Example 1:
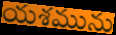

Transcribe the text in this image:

యశమును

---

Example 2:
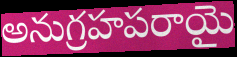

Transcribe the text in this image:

అనుగ్రహపరాయై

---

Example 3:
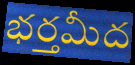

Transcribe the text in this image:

భర్తమీద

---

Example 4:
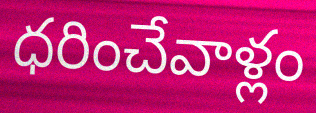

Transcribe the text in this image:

ధరించేవాళ్లం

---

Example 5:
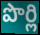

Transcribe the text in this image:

పొర్లి